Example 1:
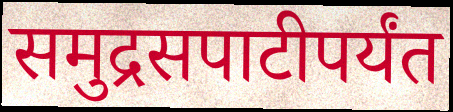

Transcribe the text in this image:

समुद्रसपाटीपर्यंत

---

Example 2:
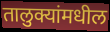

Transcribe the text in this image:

तालुक्यांमधील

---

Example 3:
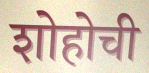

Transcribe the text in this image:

शोहोची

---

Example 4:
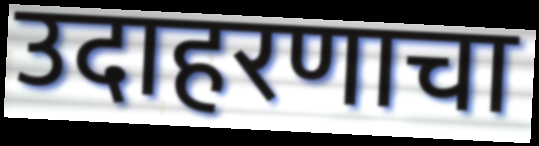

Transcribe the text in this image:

उदाहरणाचा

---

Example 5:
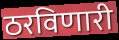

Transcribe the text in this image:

ठरविणारी